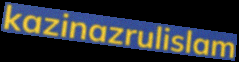
kazinazrulislam